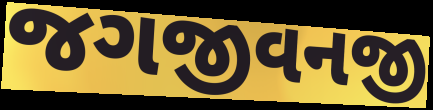
જગજીવનજી